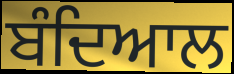
ਬੰਦਿਆਲ